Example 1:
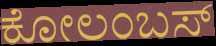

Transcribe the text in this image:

ಕೋಲಂಬಸ್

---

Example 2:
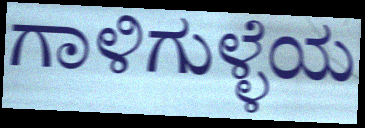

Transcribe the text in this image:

ಗಾಳಿಗುಳ್ಳೆಯ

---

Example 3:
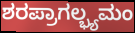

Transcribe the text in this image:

ಶರಪ್ರಾಗಲ್ಭ್ಯಮಂ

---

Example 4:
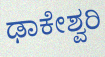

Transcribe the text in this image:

ಢಾಕೇಶ್ವರಿ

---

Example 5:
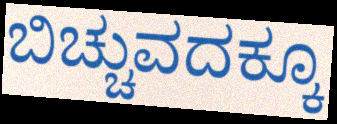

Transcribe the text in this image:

ಬಿಚ್ಚುವದಕ್ಕೂ